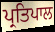
ਪ੍ਰਤਿਪਾਲ